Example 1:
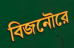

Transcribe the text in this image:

বিজনৌরে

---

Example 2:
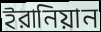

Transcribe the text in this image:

ইরানিয়ান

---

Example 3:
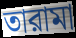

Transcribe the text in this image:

তারামা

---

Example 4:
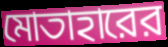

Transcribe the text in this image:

মোতাহারের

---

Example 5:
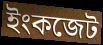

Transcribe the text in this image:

ইংকজেট